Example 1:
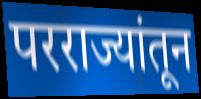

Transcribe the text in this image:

परराज्यांतून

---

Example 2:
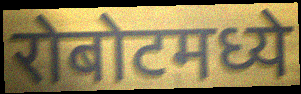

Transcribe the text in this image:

रोबोटमध्ये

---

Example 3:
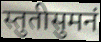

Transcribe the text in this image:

स्तुतीसुमनं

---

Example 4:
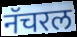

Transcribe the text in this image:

नॅचरल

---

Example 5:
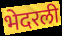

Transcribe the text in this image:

भेदरली